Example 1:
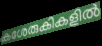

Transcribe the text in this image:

കശേരുകികളിൽ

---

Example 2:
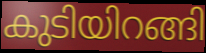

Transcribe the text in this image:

കുടിയിറങ്ങി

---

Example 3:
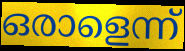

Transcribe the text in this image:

ഒരാളെന്ന്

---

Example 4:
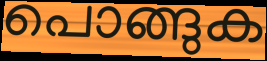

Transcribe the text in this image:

പൊങ്ങുക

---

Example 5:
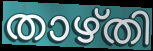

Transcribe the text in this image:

താഴ്തി